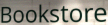
Bookstore